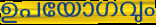
ഉപയോഗവും